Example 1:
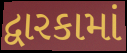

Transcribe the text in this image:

દ્વારકામાં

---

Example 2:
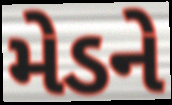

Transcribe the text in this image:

મેડને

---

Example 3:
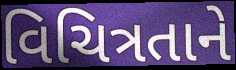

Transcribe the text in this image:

વિચિત્રતાને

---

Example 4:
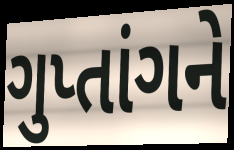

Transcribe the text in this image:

ગુપ્તાંગને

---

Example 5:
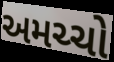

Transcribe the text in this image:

અમચ્ચો